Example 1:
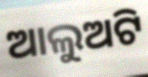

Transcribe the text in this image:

ଆଲୁଅଟି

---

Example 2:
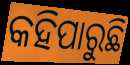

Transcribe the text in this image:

କହିପାରୁଛି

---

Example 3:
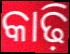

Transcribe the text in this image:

କାଢ଼ି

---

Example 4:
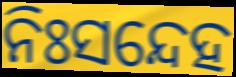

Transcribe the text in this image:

ନିଃସନ୍ଦେହ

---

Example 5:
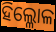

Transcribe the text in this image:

ହିଲ୍ଳୋଳ